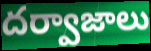
దర్వాజాలు